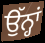
ਉੱਨ੍ਹਾਂ